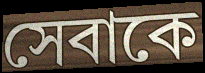
সেবাকে